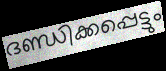
ദണ്ഡിക്കപ്പെട്ടും